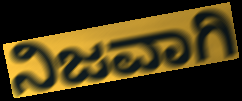
ನಿಜವಾಗಿ